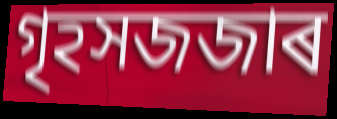
গৃহসজজাৰ